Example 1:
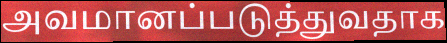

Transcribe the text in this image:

அவமானப்படுத்துவதாக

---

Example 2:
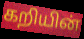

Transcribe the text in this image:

கறியின்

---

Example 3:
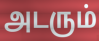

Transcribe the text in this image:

அடரும்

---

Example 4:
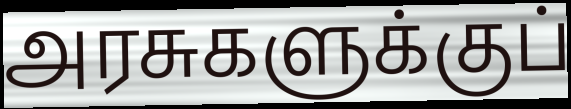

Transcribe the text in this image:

அரசுகளுக்குப்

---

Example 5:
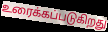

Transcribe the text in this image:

உரைக்கப்படுகிறது